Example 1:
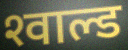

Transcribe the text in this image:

श्वाल्ड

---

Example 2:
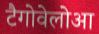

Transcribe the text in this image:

टैगोवेलोआ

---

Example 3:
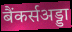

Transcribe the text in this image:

बैंकर्सअड्डा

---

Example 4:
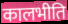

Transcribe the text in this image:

कालभीति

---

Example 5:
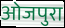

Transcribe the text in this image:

ओजपुरा